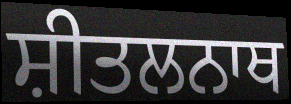
ਸ਼ੀਤਲਨਾਥ